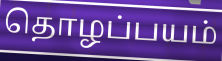
தொழப்பயம்